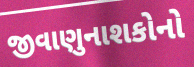
જીવાણુનાશકોનો